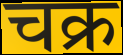
चक्र